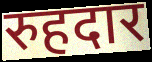
रुहदार